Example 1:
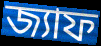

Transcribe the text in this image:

জ্যাফ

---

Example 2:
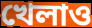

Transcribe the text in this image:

খেলাও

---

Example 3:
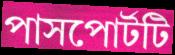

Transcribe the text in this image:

পাসপোর্টটি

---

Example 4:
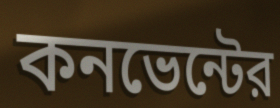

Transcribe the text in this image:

কনভেন্টের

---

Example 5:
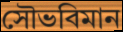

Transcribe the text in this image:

সৌভবিমান